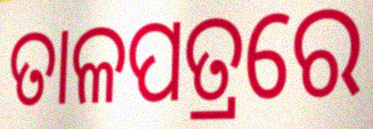
ତାଳପତ୍ରରେ